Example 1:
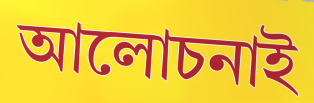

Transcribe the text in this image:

আলোচনাই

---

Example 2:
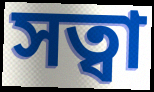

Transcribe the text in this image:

সত্বা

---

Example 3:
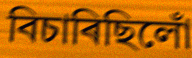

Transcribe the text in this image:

বিচাৰিছিলোঁ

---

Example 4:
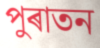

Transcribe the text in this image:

পুৰাতন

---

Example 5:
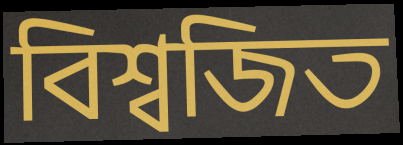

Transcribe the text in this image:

বিশ্বজিত